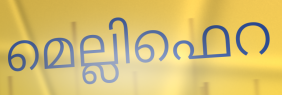
മെല്ലിഫെറ